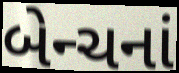
બેન્ચનાં